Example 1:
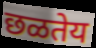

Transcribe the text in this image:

छळतेय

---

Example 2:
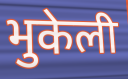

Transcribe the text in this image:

भुकेली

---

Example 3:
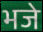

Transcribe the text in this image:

भजे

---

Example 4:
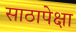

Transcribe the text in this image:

साठापेक्षा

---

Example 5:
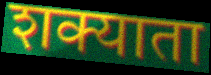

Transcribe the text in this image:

शक्याता